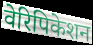
वेरिपिकेशन